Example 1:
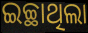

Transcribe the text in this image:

ଇଚ୍ଛାଥିଲା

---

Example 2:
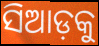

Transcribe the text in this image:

ସିଆଡ଼କୁ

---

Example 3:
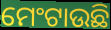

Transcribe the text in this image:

ମେଂଟାଉଛି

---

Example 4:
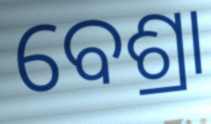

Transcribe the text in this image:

ବେଶ୍ରା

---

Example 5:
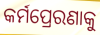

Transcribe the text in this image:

କର୍ମପ୍ରେରଣାକୁ